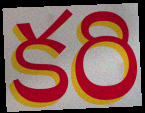
కరి